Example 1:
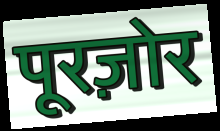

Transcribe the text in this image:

पूरज़ोर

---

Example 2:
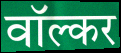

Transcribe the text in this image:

वॉल्कर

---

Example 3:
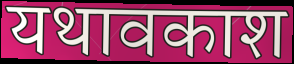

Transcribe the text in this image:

यथावकाश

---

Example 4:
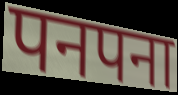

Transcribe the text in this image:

पनपना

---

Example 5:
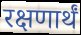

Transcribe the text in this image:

रक्षणार्थं